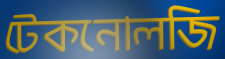
টেকনোলজি